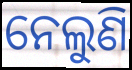
ନେଲୁଣି